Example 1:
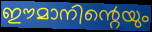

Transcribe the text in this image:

ഈമാനിന്റെയും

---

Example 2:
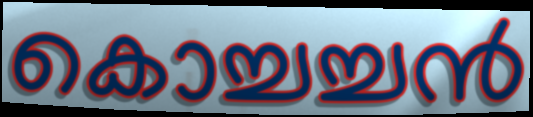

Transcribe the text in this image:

കൊച്ചച്ചൻ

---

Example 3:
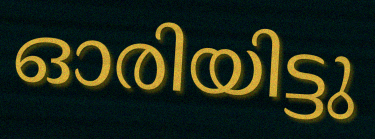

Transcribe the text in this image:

ഓരിയിട്ടു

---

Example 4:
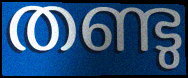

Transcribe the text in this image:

തണ്ടു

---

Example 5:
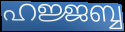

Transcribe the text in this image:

ഹജ്ജബ്ബ